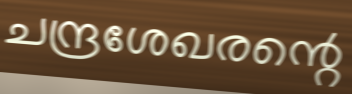
ചന്ദ്രശേഖരന്റെ